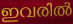
ഇവരിൽ